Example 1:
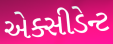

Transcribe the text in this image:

એક્સીડેન્ટ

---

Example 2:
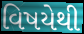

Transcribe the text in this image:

વિષયેથી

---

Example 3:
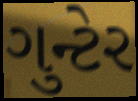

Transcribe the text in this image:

ગુન્ટેર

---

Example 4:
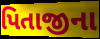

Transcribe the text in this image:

પિતાજીના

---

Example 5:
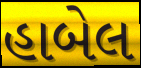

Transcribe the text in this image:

હાબેલ